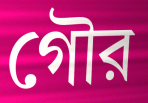
গৌর